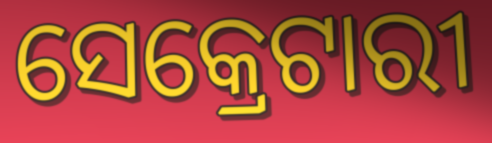
ସେକ୍ରେଟାରୀ